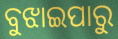
ବୁଝାଇପାରୁ